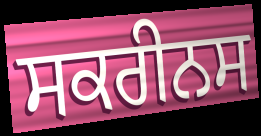
ਸਕਰੀਨਸ